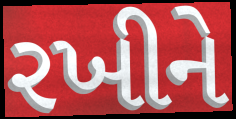
રખીને